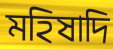
মহিষাদি